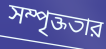
সম্পৃক্ততার